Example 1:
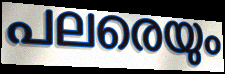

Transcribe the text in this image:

പലരെയും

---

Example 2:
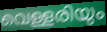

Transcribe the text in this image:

വെള്ളരിയും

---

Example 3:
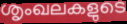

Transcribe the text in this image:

ശൃംഖലകളുടെ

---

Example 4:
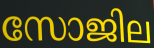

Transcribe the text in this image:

സോജില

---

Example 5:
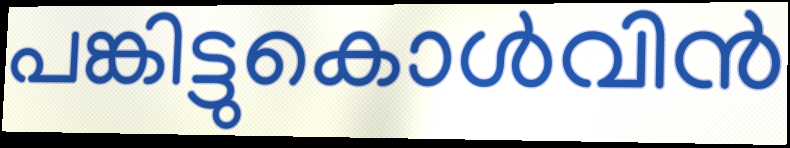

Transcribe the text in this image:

പങ്കിട്ടുകൊൾവിൻ